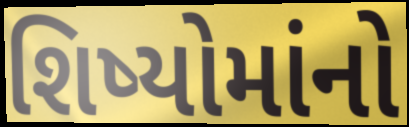
શિષ્યોમાંનો